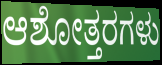
ಆಶೋತ್ತರಗಳು